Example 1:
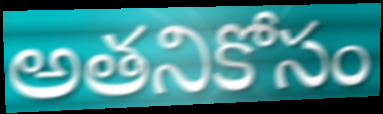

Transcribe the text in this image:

అతనికోసం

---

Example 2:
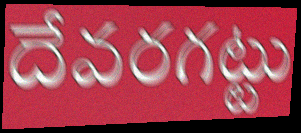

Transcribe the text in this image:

దేవరగట్టు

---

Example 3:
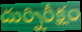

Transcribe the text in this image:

దుర్నిరీక్షం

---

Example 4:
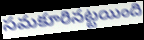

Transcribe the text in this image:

సమకూరినట్టయింది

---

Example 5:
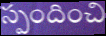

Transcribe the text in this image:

స్పందించి